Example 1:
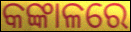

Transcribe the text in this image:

କଙ୍କାଳରେ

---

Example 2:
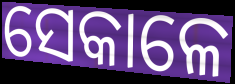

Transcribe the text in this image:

ସେକାଳେ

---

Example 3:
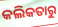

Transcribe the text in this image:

କଲିକତାରୁ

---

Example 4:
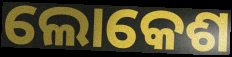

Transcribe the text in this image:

ଲୋକେଶ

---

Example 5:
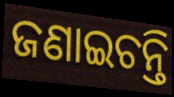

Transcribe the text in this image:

ଜଣାଇଚନ୍ତି